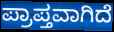
ಪ್ರಾಪ್ತವಾಗಿದೆ